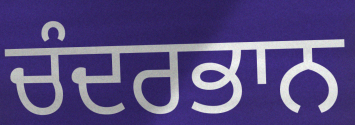
ਚੰਦਰਭਾਨ